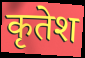
कृतेश